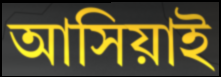
আসিয়াই